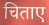
चिताए